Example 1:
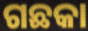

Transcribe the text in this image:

ଗଛକା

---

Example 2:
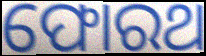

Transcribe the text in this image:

ଫୋରଥ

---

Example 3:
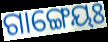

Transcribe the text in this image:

ଗାଙ୍ଗେୟଃ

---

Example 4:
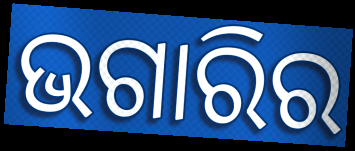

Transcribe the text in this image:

ଭଗାରିର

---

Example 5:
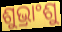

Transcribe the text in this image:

ଶୁଭ୍ରାଂଶୁ